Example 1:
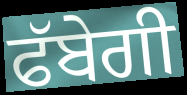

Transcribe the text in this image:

ਫੱਬੇਗੀ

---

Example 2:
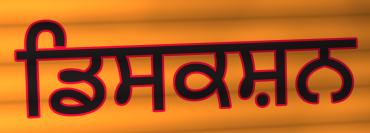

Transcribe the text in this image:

ਡਿਸਕਸ਼ਨ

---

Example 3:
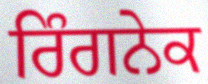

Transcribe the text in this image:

ਰਿੰਗਨੇਕ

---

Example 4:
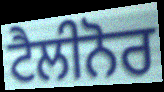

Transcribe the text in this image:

ਟੈਲੀਨੋਰ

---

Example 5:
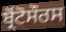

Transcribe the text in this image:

ਬ੍ਰੋਂਟੋਸੌਰਸ